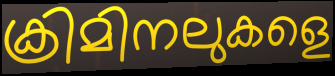
ക്രിമിനലുകളെ